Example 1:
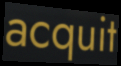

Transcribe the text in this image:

acquit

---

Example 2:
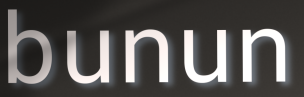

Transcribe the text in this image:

bunun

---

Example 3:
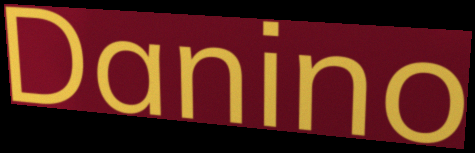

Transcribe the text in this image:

Danino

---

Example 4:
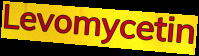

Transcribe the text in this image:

Levomycetin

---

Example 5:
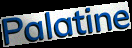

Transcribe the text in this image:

Palatine